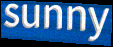
sunny